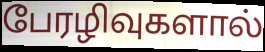
பேரழிவுகளால்